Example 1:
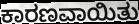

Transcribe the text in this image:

ಕಾರಣವಾಯಿತು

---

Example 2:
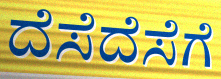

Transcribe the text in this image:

ದೆಸೆದೆಸೆಗೆ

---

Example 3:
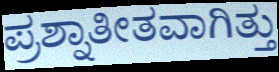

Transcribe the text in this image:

ಪ್ರಶ್ನಾತೀತವಾಗಿತ್ತು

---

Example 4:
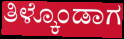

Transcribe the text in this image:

ತಿಳ್ಕೊಂಡಾಗ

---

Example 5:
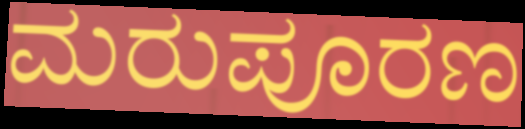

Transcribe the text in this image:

ಮರುಪೂರಣ